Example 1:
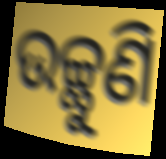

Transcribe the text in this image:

ଉଚ୍ଛୁଣି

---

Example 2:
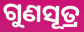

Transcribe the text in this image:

ଗୁଣସୂତ୍ର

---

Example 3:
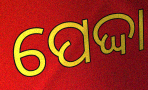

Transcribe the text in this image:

ପେଦ୍ଦା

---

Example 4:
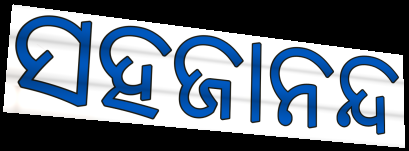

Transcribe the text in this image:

ସହଜାନନ୍ଦ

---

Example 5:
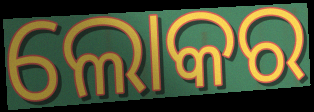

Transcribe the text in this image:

ଲୋକର